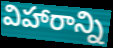
విహారాన్ని